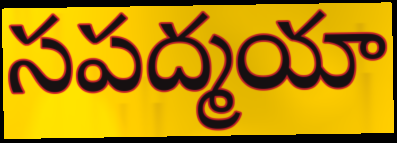
సపద్మయా